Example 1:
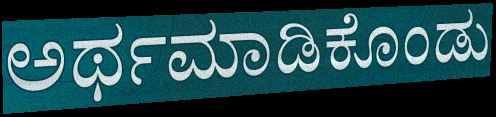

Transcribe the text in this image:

ಅರ್ಥಮಾಡಿಕೊಂಡು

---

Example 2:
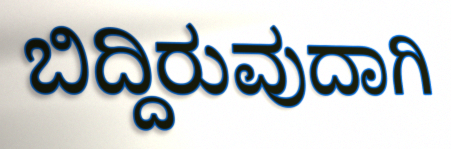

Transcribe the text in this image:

ಬಿದ್ದಿರುವುದಾಗಿ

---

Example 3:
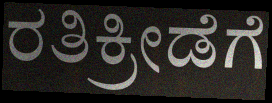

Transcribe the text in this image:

ರತಿಕ್ರೀಡೆಗೆ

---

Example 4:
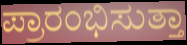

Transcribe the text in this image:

ಪ್ರಾರಂಭಿಸುತ್ತಾ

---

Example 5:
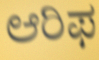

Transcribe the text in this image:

ಆರಿಫ